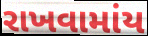
રાખવામાંય